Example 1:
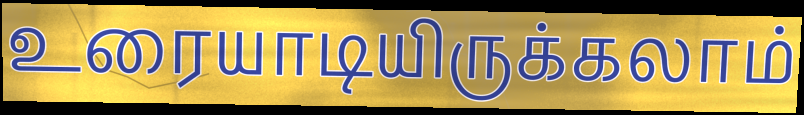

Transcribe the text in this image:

உரையாடியிருக்கலாம்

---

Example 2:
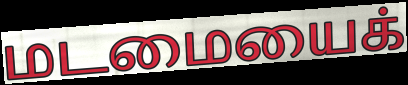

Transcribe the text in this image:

மடமையைக்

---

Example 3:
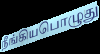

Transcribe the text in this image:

நீங்கியபொழுது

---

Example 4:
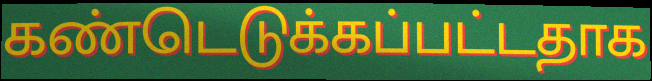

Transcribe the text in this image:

கண்டெடுக்கப்பட்டதாக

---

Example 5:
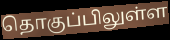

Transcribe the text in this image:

தொகுப்பிலுள்ள